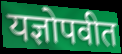
यज्ञोपवीत